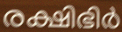
രക്ഷിഭിർ